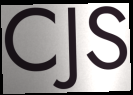
CJS